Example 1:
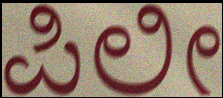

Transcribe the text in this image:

ಪಿಲೀ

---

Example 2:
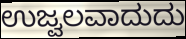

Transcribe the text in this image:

ಉಜ್ವಲವಾದುದು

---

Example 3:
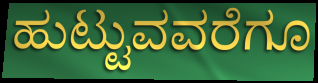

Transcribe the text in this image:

ಹುಟ್ಟುವವರೆಗೂ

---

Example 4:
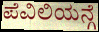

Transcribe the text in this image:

ಪೆವಿಲಿಯನ್ಗೆ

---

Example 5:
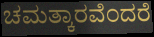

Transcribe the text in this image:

ಚಮತ್ಕಾರವೆಂದರೆ